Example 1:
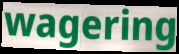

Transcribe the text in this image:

wagering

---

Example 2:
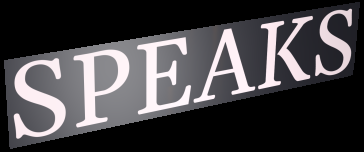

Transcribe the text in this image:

SPEAKS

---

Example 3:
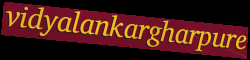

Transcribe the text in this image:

vidyalankargharpure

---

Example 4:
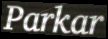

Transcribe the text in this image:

Parkar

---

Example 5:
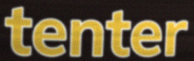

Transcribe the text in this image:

tenter